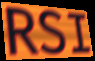
RSI